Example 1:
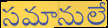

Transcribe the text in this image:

సమానులే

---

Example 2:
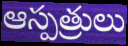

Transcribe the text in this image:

ఆస్పత్రులు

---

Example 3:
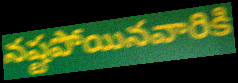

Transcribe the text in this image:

నష్టపోయినవారికి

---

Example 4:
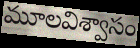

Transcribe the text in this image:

మూలవిశ్వాసం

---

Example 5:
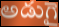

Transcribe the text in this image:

అడుగై